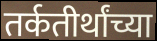
तर्कतीर्थांच्या